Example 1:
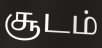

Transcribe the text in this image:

சூடம்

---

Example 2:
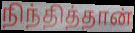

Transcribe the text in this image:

நிந்தித்தான்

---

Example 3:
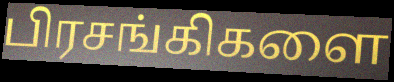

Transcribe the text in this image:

பிரசங்கிகளை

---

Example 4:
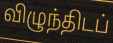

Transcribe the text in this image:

விழுந்திடப்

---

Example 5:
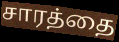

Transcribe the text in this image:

சாரத்தை